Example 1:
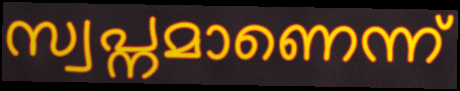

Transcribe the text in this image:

സ്വപ്നമാണെന്ന്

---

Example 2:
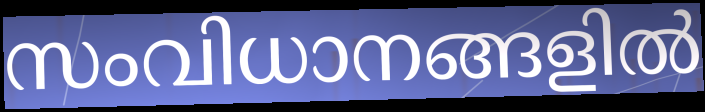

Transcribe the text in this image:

സംവിധാനങ്ങളിൽ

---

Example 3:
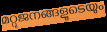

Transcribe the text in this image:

മറ്റുജനങ്ങളുടെയും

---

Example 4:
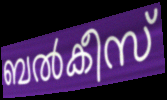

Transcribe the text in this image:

ബൽകീസ്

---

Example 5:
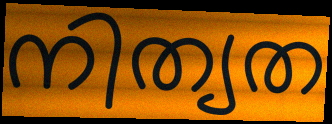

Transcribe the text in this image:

നിത്യത